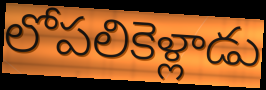
లోపలికెళ్లాడు